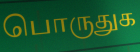
பொருதுக